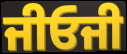
ਜੀਓਜੀ